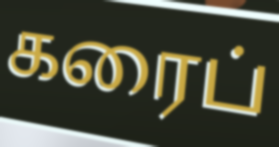
கரைப்